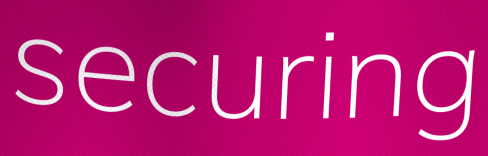
securing